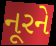
નૂરને